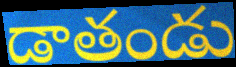
డాతండు